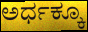
ಅರ್ಧಕ್ಕೂ